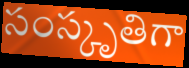
సంస్కృతిగా